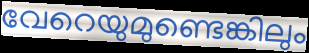
വേറെയുമുണ്ടെങ്കിലും